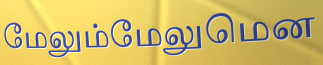
மேலும்மேலுமென